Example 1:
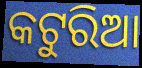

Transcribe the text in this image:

କଟୁରିଆ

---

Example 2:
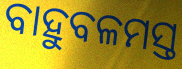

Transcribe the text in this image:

ବାହୁବଳମସ୍ତ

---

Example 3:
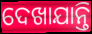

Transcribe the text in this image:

ଦେଖାଯାନ୍ତି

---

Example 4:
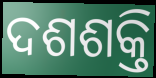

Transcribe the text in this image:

ଦଶଶକ୍ତି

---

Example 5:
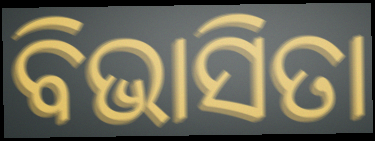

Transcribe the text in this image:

ବିଭାସିତା